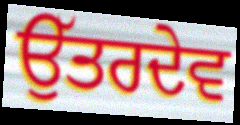
ਉੱਤਰਦੇਵ